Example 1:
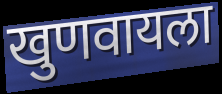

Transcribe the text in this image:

खुणवायला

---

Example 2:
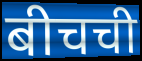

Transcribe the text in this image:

बीचची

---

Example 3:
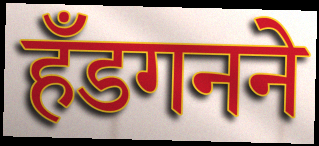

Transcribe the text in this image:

हँडगनने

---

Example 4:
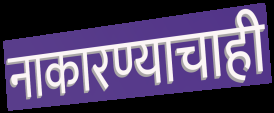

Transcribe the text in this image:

नाकारण्याचाही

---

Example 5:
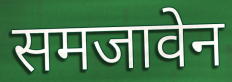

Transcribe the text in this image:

समजावेन